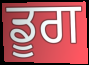
ਡੂਗ